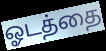
ஓடத்தை